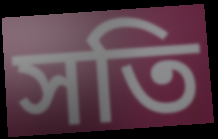
সতি